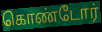
கொண்டோர்